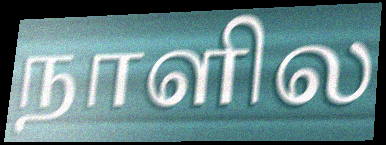
நாளில